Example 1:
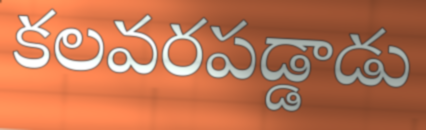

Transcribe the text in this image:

కలవరపడ్డాడు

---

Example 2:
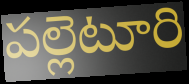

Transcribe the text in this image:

పల్లెటూరి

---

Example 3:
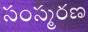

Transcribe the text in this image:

సంస్మరణ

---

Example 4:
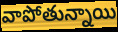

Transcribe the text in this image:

వాపోతున్నాయి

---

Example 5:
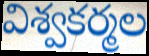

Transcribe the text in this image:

విశ్వకర్మల